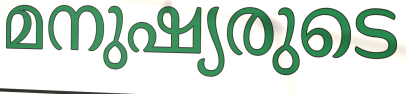
മനുഷ്യരുടെ